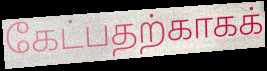
கேட்பதற்காகக்